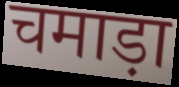
चमाड़ा